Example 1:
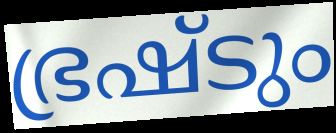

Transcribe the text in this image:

ഭ്രഷ്ടും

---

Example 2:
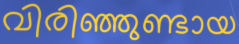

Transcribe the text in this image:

വിരിഞ്ഞുണ്ടായ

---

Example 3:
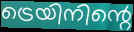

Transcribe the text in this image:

ട്രെയിനിന്റെ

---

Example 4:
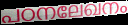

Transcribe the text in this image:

പഠനലേഖനം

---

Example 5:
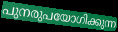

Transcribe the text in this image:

പുനരുപയോഗിക്കുന്ന